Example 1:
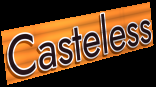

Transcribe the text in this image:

Casteless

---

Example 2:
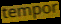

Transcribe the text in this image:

tempor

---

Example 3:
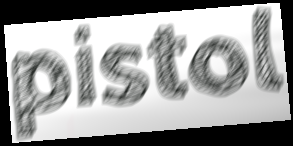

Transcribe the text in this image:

pistol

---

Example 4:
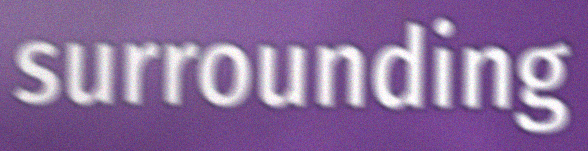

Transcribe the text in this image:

surrounding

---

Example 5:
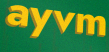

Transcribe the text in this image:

ayvm